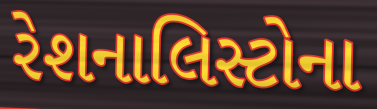
રેશનાલિસ્ટોના